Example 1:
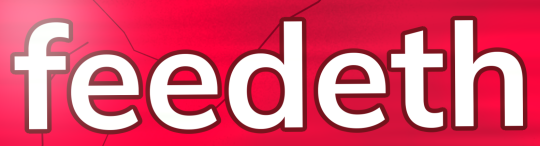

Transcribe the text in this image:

feedeth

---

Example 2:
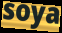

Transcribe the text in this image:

soya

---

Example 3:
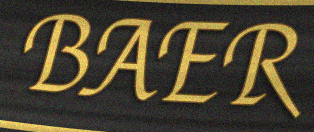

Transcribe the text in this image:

BAER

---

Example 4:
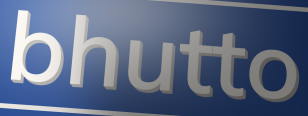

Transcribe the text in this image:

bhutto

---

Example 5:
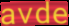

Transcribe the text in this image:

avde